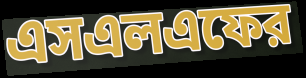
এসএলএফের